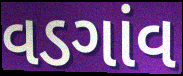
વડગાંવ